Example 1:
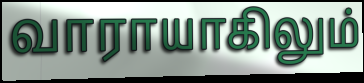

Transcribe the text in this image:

வாராயாகிலும்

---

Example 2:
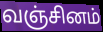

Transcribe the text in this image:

வஞ்சினம்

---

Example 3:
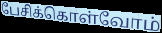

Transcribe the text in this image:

பேசிக்கொள்வோம்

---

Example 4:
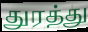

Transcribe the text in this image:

துரத்து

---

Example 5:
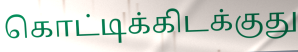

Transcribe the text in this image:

கொட்டிக்கிடக்குது